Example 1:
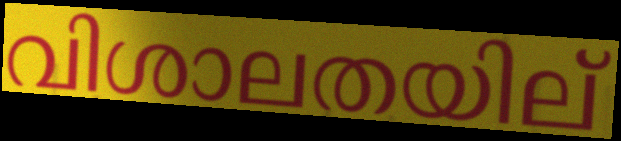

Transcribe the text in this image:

വിശാലതയില്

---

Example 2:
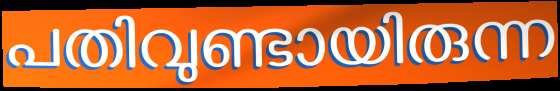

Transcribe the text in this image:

പതിവുണ്ടായിരുന്ന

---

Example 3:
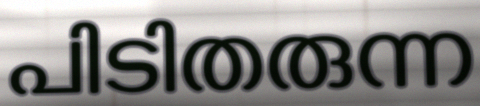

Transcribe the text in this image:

പിടിതരുന്ന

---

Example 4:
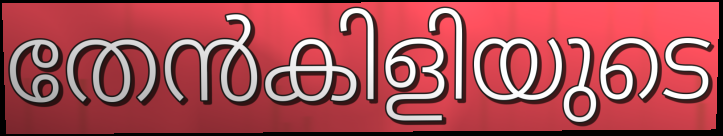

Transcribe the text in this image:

തേൻകിളിയുടെ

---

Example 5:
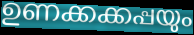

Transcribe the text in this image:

ഉണക്കക്കപ്പയും